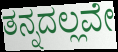
ತನ್ನದಲ್ಲವೇ